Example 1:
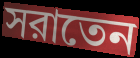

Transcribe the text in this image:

সরাতেন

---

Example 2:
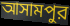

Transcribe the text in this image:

আসামপুর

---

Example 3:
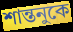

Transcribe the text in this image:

শান্তনুকে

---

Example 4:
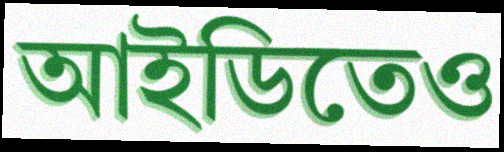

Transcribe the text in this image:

আইডিতেও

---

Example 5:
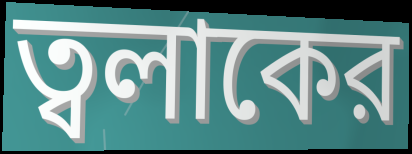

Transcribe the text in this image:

ত্বলাকের